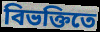
বিভক্তিতে